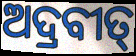
ଅଦ୍ରବୀତ୍